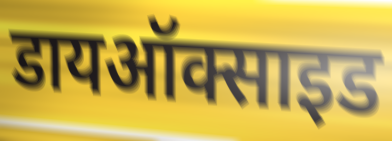
डायऑक्साइड